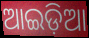
ଆଇଡ଼ିଆ